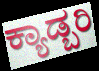
ಕ್ಯಾಡ್ಬರಿ